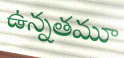
ఉన్నతమూ